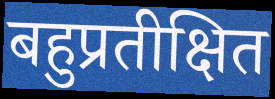
बहुप्रतीक्षित